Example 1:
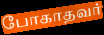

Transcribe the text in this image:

போகாதவர்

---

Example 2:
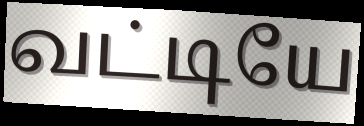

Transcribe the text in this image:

வட்டியே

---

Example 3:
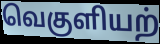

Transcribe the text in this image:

வெகுளியற்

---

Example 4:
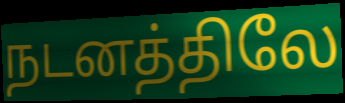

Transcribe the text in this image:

நடனத்திலே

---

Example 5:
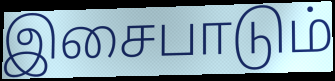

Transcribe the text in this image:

இசைபாடும்